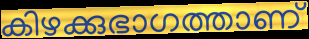
കിഴക്കുഭാഗത്താണ്